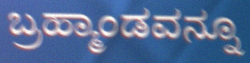
ಬ್ರಹ್ಮಾಂಡವನ್ನೂ